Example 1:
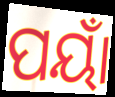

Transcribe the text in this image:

ପୟାଁ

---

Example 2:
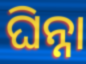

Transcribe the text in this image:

ଘିନ୍ନା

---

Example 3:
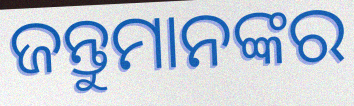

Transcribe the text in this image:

ଜନ୍ତୁମାନଙ୍କର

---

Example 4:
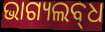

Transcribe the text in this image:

ଭାଗ୍ୟଲବ୍‌ଧ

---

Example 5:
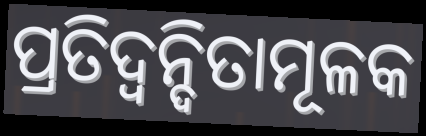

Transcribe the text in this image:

ପ୍ରତିଦ୍ୱନ୍ଦିତାମୂଳକ